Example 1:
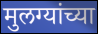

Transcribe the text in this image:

मुलग्यांच्या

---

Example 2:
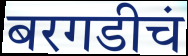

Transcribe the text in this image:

बरगडीचं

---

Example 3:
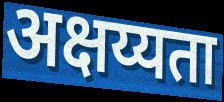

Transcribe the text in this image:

अक्षय्यता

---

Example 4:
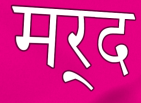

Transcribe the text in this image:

मर्द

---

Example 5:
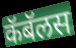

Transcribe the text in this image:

कॅबॅलस